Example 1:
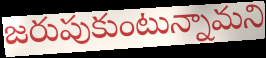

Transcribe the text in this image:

జరుపుకుంటున్నామని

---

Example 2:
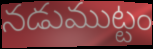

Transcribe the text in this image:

నడుముట్టం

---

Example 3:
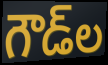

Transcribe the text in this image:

గౌడ్‌ల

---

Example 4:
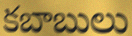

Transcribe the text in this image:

కబాబులు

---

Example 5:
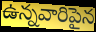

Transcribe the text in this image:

ఉన్నవారిపైన